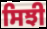
ਸਿਝੀ